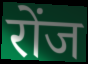
रोंज